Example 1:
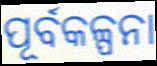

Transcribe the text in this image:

ପୂର୍ବକଳ୍ପନା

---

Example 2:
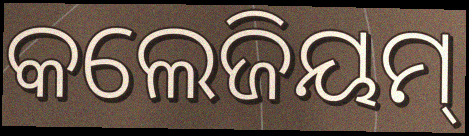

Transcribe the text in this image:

କଲେଜିୟମ୍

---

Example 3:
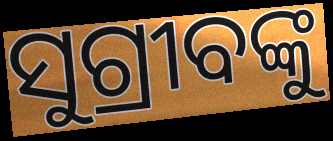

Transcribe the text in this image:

ସୁଗ୍ରୀବଙ୍କୁ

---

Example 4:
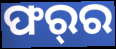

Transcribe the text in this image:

ଫର୍‌ର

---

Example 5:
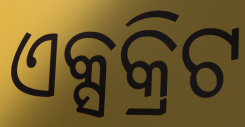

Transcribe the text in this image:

ଏକ୍ସକ୍ରିଟ